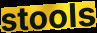
stools